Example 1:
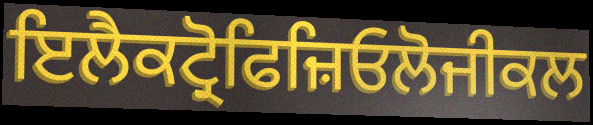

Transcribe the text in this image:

ਇਲੈਕਟ੍ਰੋਫਿਜ਼ਿਓਲੋਜੀਕਲ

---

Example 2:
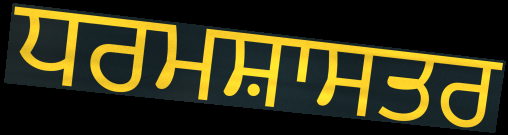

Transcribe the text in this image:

ਧਰਮਸ਼ਾਸਤਰ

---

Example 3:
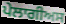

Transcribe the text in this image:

ਪੇਲਾਗੀਅਸ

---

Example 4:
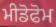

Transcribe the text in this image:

ਮੀਡੋਫੋਮ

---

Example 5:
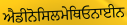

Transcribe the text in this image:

ਐਡੀਨੋਸਿਲਮੇਥਿਓਨਾਈਨ